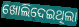
ଖୋଲିଦେଇଥିଲା